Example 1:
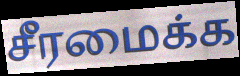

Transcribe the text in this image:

சீரமைக்க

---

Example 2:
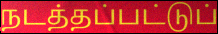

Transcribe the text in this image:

நடத்தப்பட்டுப்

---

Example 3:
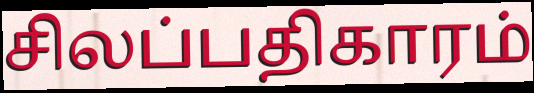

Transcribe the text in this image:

சிலப்பதிகாரம்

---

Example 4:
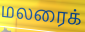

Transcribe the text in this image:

மலரைக்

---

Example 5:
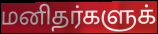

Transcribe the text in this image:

மனிதர்களுக்